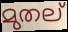
മുതല്